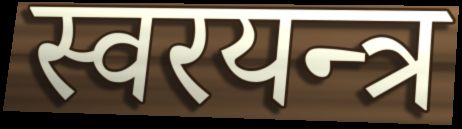
स्वरयन्त्र